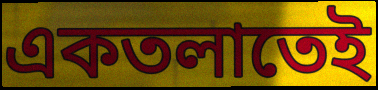
একতলাতেই